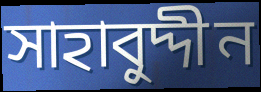
সাহাবুদ্দীন